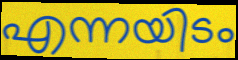
എന്നയിടം